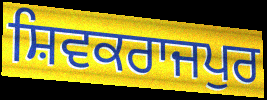
ਸ਼ਿਵਕਰਾਜਪੁਰ